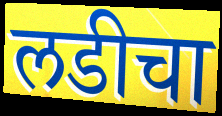
लडीचा